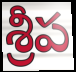
శ్రీప